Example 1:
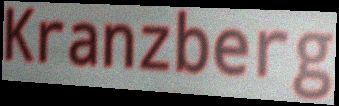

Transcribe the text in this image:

Kranzberg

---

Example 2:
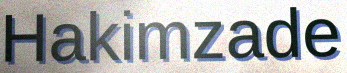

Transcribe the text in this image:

Hakimzade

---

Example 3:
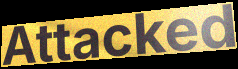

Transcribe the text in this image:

Attacked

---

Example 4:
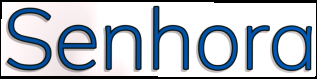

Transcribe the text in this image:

Senhora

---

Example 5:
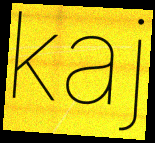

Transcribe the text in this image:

kaj